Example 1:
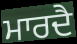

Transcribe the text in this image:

ਮਾਰਦੈ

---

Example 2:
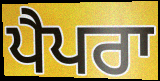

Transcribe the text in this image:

ਪੈਪਰਾ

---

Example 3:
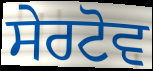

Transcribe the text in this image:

ਸੇਰਟੋਵ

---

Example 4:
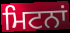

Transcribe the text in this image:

ਮਿਟਨਾਂ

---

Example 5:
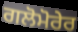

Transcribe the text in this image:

ਗਲੋਮੋਰੇਰ